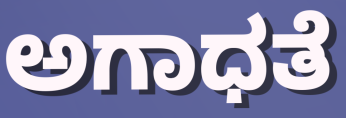
ಅಗಾಧತೆ